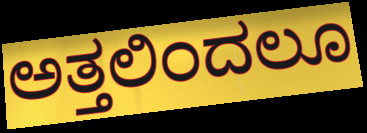
ಅತ್ತಲಿಂದಲೂ